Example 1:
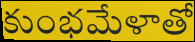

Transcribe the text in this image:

కుంభమేళాతో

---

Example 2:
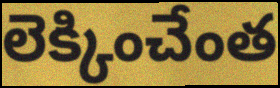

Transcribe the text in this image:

లెక్కించేంత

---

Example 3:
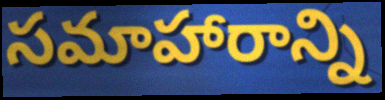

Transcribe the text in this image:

సమాహారాన్ని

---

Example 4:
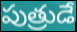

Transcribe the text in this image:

పుత్రుడే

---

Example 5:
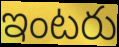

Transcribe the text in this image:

ఇంటరు